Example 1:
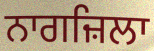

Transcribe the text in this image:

ਨਾਗਜ਼ਿਲਾ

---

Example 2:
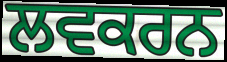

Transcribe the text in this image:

ਲਵਕਰਨ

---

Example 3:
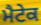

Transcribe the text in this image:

ਮੈਟੇਕ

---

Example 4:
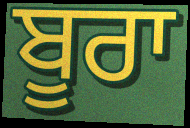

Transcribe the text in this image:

ਬੂਰਾ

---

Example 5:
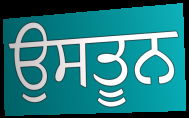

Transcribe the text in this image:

ਉਸਤੂਨ